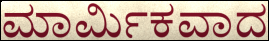
ಮಾರ್ಮಿಕವಾದ